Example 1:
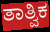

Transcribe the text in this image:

ತಾತ್ವಿಕ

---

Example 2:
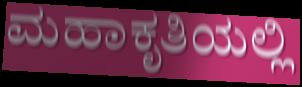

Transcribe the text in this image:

ಮಹಾಕೃತಿಯಲ್ಲಿ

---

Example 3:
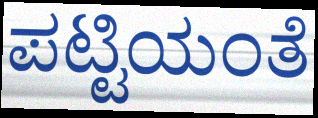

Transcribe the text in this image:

ಪಟ್ಟಿಯಂತೆ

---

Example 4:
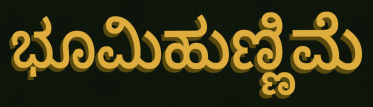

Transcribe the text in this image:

ಭೂಮಿಹುಣ್ಣಿಮೆ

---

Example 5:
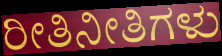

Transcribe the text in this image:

ರೀತಿನೀತಿಗಳು